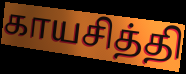
காயசித்தி